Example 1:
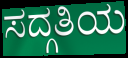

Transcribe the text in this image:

ಸದ್ಗತಿಯ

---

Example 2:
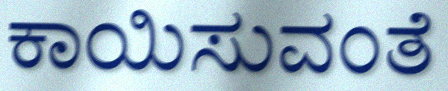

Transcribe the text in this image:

ಕಾಯಿಸುವಂತೆ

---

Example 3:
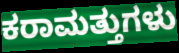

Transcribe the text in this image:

ಕರಾಮತ್ತುಗಳು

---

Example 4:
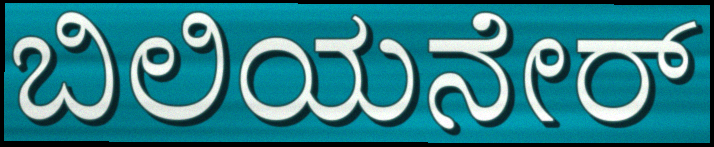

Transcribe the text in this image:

ಬಿಲಿಯನೇರ್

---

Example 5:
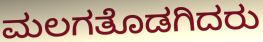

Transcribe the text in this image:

ಮಲಗತೊಡಗಿದರು